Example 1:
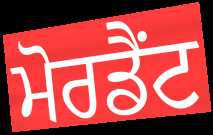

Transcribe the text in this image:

ਮੋਰਡੈਂਟ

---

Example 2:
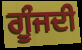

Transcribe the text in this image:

ਗੂੰਜਦੀ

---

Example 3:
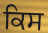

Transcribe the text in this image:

ਕਿਸ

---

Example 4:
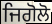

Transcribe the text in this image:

ਜਿਗੋਲੋ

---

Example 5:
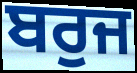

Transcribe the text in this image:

ਬਰੁਜ